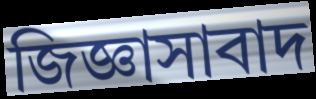
জিজ্ঞাসাবাদ